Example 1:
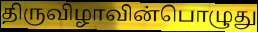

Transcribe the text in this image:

திருவிழாவின்பொழுது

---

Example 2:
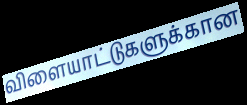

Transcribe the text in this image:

விளையாட்டுகளுக்கான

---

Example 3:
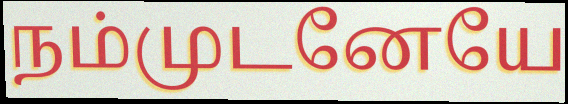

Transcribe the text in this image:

நம்முடனேயே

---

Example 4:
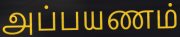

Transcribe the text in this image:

அப்பயணம்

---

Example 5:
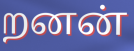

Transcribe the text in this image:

றனன்